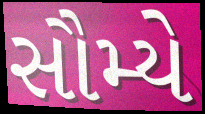
સૌમ્યે